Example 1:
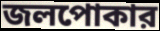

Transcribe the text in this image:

জলপোকার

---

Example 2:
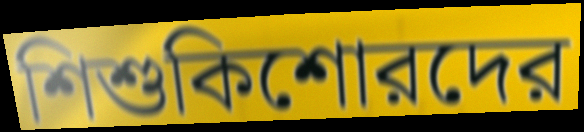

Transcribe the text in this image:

শিশুকিশোরদের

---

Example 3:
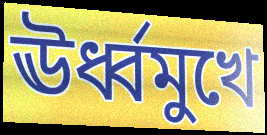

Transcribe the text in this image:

ঊর্ধ্বমুখে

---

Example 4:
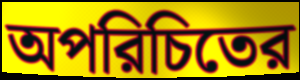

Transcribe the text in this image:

অপরিচিতের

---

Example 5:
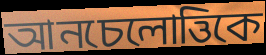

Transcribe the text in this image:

আনচেলোত্তিকে